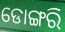
ଡୋଙ୍ଗରି